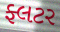
ફ્લટર